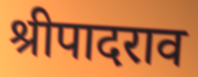
श्रीपादराव